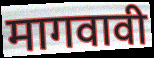
मागवावी